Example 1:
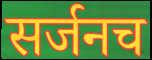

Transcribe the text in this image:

सर्जनच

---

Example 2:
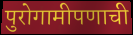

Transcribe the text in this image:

पुरोगामीपणाची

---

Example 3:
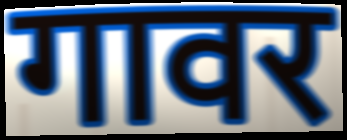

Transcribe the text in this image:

गावर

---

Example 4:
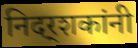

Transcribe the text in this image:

निदर्शकांनी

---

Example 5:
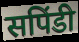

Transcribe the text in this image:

सपिंडी